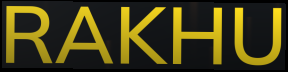
RAKHU